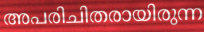
അപരിചിതരായിരുന്ന